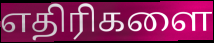
எதிரிகளை